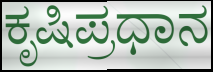
ಕೃಷಿಪ್ರಧಾನ